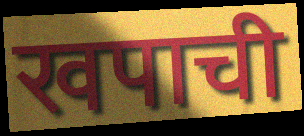
खपाची